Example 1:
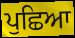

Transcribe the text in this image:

ਪੁਛਿਆ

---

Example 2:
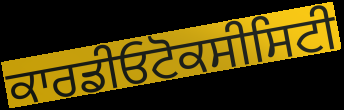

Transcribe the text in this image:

ਕਾਰਡੀਓਟੋਕਸੀਸਿਟੀ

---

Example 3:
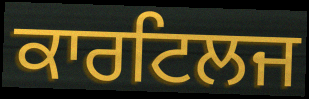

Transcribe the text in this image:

ਕਾਰਟਿਲਜ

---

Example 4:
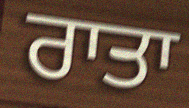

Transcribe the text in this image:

ਰਾਤਾ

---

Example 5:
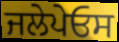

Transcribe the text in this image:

ਜਲੇਪੇਓਸ